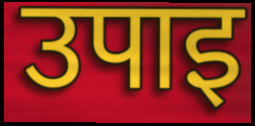
उपाइ